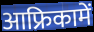
आफ्रिकामें